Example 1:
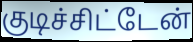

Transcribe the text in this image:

குடிச்சிட்டேன்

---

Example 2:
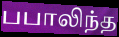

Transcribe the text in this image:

பபாலிந்த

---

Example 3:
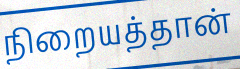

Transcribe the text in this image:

நிறையத்தான்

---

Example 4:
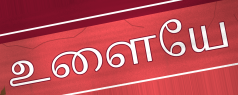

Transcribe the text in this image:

உளையே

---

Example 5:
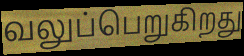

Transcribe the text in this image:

வலுப்பெறுகிறது